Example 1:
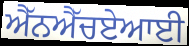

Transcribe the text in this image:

ਐੱਨਐੱਚਏਆਈ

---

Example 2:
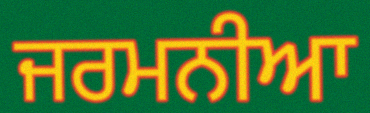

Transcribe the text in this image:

ਜਰਮਨੀਆ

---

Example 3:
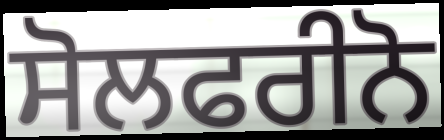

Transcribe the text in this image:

ਸੋਲਫਰੀਨੋ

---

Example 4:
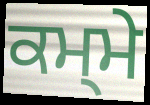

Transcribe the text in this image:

ਕਮ੍ਮੇ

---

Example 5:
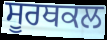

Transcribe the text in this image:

ਸੂਰਥਕਲ